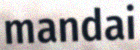
mandai